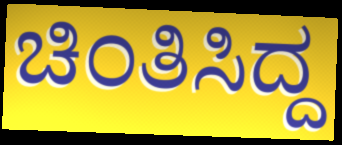
ಚಿಂತಿಸಿದ್ದ